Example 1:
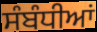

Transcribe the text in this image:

ਸੰਬੰਧੀਆਂ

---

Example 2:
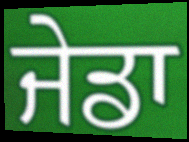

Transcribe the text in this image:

ਜੇਡਾ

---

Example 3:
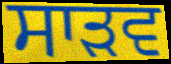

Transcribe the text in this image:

ਸਾੜਵ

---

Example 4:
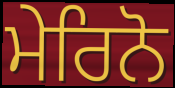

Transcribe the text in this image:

ਮੇਰਿਨੋ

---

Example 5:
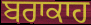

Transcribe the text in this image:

ਬਰਾਕਾਹ